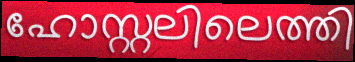
ഹോസ്റ്റലിലെത്തി